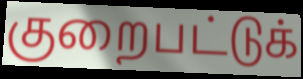
குறைபட்டுக்